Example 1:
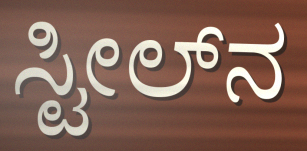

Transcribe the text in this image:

ಸ್ಟೀಲ್‌ನ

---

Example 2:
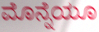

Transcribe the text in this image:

ಮೊನ್ನೆಯೂ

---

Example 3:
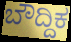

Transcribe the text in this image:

ಬೌದ್ದಿಕ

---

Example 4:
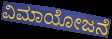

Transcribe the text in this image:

ವಿಮಾಯೋಜನೆ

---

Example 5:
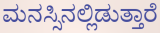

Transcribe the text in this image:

ಮನಸ್ಸಿನಲ್ಲಿಡುತ್ತಾರೆ